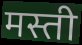
मस्‍ती